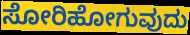
ಸೋರಿಹೋಗುವುದು